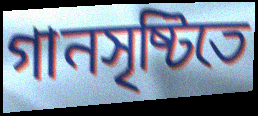
গানসৃষ্টিতে